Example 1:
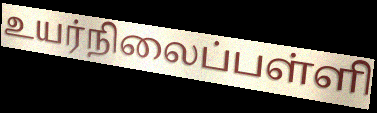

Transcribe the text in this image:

உயர்நிலைப்பள்ளி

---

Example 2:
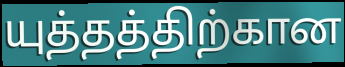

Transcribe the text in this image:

யுத்தத்திற்கான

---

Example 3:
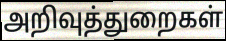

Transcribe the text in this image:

அறிவுத்துறைகள்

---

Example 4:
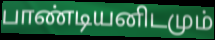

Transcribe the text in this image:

பாண்டியனிடமும்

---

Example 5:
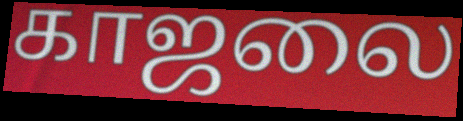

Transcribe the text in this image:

காஜலை